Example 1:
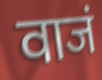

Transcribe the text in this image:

वाजं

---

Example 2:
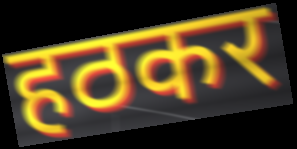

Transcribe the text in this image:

हठकर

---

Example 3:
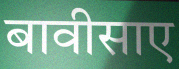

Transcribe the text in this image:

बावीसाए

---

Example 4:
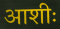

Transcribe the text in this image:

आशीः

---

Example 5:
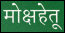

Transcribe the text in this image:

मोक्षहेतू